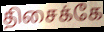
திசைக்கே